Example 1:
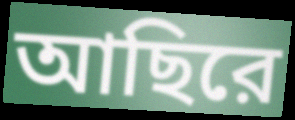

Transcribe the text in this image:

আছিরে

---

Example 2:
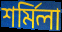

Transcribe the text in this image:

শর্মিলা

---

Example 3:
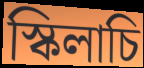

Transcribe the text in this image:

স্কিলাচি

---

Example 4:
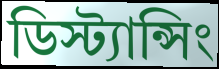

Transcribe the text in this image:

ডিস্ট্যান্সিং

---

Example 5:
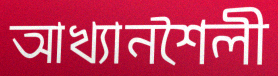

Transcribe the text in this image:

আখ্যানশৈলী